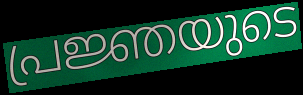
പ്രജ്ഞയുടെ